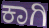
ಕಾಗಿ